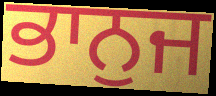
ਭਾਨੁਜ